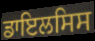
ਡਾਇਲਸਿਸ